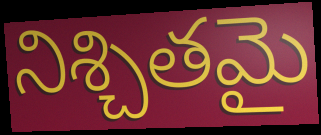
నిశ్చితమై